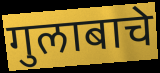
गुलाबाचे